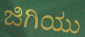
ಜಿಗಿಯು